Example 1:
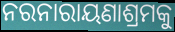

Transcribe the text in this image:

ନରନାରାୟଣାଶ୍ରମକୁ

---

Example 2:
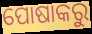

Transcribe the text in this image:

ପୋଷାକରୁ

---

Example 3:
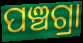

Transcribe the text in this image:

ପଞ୍ଚଗ୍ରା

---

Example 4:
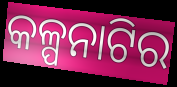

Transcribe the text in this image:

କଳ୍ପନାଟିର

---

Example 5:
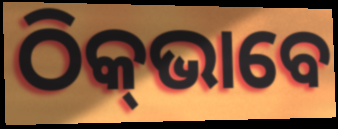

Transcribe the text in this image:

ଠିକ୍‍ଭାବେ